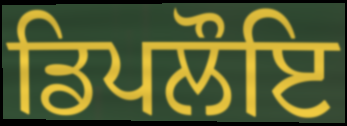
ਡਿਪਲੌਇ